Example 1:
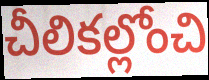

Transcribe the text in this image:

చీలికల్లోంచి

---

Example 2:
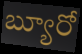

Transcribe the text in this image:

బ్యూరో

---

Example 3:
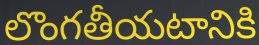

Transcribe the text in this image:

లొంగతీయటానికి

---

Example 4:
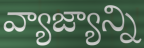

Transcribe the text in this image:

వ్యాజ్యాన్ని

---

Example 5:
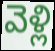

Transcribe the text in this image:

వెళ్లి